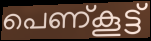
പെണ്കൂട്ട്